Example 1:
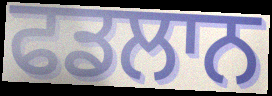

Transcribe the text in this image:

ਫਡਲਾਨ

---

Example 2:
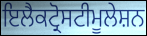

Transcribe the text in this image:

ਇਲੈਕਟ੍ਰੋਸਟੀਮੂਲੇਸ਼ਨ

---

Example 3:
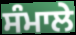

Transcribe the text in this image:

ਸੰਮਾਲੇ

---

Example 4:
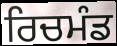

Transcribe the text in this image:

ਰਿਚਮੰਡ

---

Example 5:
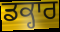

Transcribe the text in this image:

ਡਕ੍ਹਾਰ